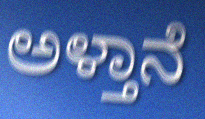
ಅಳ್ತಾನೆ